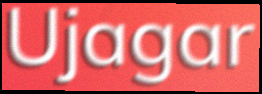
Ujagar